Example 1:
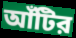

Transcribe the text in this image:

আঁটির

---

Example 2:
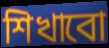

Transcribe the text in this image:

শিখাবো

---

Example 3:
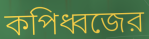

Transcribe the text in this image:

কপিধ্বজের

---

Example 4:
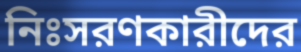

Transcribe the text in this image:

নিঃসরণকারীদের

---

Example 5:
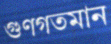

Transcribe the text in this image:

গুণগতমান